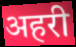
अहरी